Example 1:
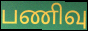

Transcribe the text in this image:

பணிவு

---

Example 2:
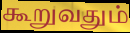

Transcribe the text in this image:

கூறுவதும்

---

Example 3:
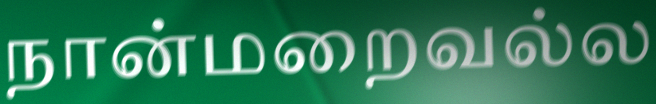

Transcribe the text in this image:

நான்மறைவல்ல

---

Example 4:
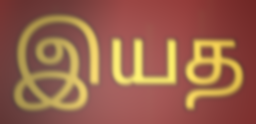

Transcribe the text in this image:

இயத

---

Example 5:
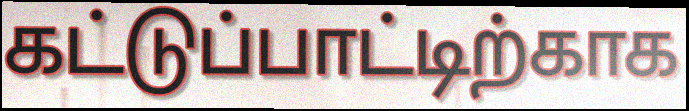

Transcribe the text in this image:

கட்டுப்பாட்டிற்காக